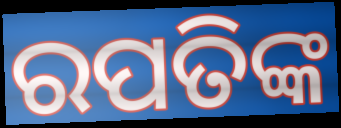
ରପତିଙ୍କ